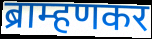
ब्राम्हणकर